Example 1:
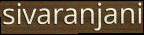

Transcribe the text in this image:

sivaranjani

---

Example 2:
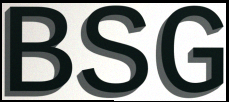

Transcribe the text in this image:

BSG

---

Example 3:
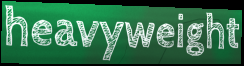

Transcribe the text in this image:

heavyweight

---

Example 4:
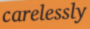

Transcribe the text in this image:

carelessly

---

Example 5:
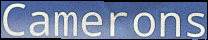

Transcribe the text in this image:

Camerons